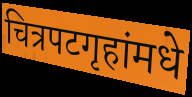
चित्रपटगृहांमधे